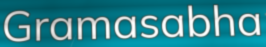
Gramasabha